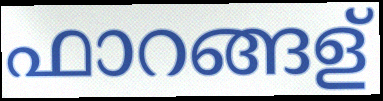
ഫാറങ്ങള്